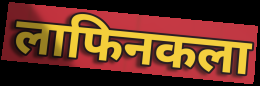
लाफिनकला